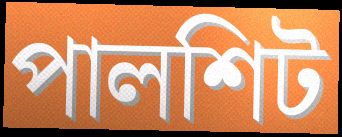
পালশিট